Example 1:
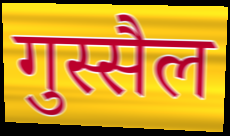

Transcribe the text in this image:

गुस्सैल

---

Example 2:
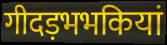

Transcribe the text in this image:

गीदड़भभकियां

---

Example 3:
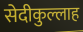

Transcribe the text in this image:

सेदीकुल्लाह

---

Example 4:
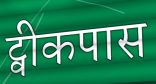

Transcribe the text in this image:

ट्वीकपास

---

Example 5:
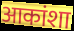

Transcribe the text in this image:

आकांशा